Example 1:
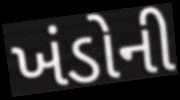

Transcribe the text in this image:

ખંડોની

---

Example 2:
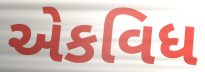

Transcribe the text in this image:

એકવિધ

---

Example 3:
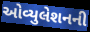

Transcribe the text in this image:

ઓવ્યુલેશનની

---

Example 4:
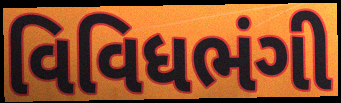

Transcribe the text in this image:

વિવિધભંગી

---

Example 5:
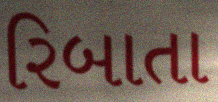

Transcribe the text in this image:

રિબાતા